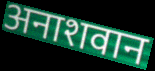
अनाशवान